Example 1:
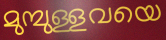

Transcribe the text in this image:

മുമ്പുള്ളവയെ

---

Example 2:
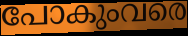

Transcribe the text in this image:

പോകുംവരെ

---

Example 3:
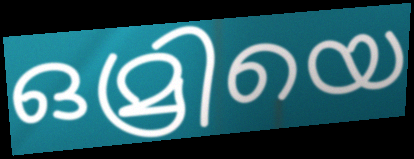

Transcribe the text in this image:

ഒമ്രിയെ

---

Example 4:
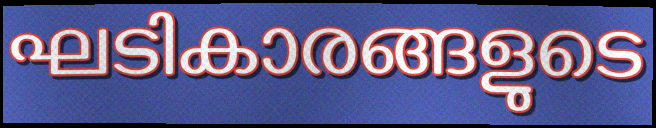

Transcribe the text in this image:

ഘടികാരങ്ങളുടെ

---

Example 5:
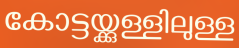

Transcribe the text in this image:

കോട്ടയ്ക്കുള്ളിലുള്ള